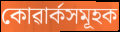
কোৱাৰ্কসমূহক